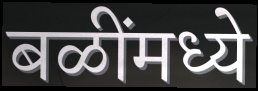
बळींमध्ये